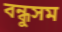
বন্ধুসম